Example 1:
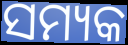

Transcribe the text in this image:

ସମ୍ୟକ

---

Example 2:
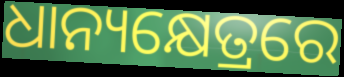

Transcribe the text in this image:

ଧାନ୍ୟକ୍ଷେତ୍ରରେ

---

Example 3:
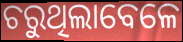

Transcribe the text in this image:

ଚରୁଥିଲାବେଳେ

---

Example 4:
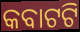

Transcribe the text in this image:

କବାଟଟି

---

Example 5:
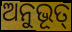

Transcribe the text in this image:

ଅନୁଭୂତ୍